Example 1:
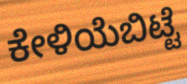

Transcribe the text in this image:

ಕೇಳಿಯೆಬಿಟ್ಟೆ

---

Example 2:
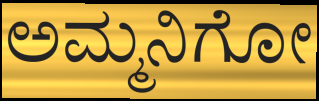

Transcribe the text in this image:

ಅಮ್ಮನಿಗೋ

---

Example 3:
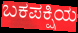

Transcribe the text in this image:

ಬಕಪಕ್ಷಿಯ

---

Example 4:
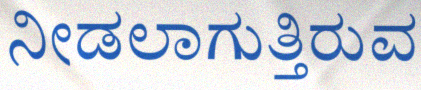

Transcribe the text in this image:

ನೀಡಲಾಗುತ್ತಿರುವ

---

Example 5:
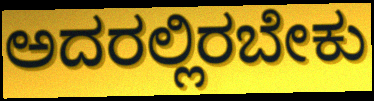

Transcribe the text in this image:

ಅದರಲ್ಲಿರಬೇಕು